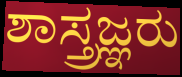
ಶಾಸ್ತ್ರಜ್ಞರು